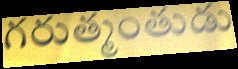
గరుత్మంతుడు